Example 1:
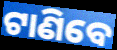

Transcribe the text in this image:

ଟାଣିବେ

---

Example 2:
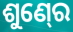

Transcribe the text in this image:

ଶୁଣ୍‍ରେ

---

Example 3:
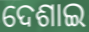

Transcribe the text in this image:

ଦେଶାଇ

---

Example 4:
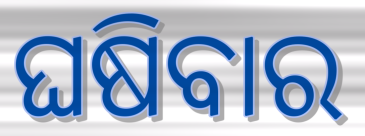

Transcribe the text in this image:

ଘଷିବାର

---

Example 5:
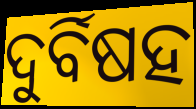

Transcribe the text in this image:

ଦୁର୍ବିଷହ